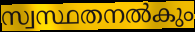
സ്വസ്ഥതനൽകും